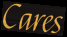
Cares